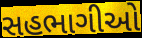
સહભાગીઓ